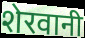
शेरवानी